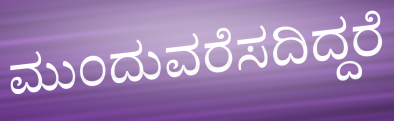
ಮುಂದುವರೆಸದಿದ್ದರೆ